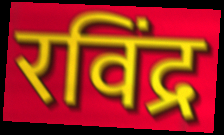
रविंद्र